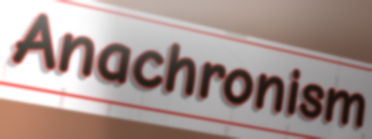
Anachronism